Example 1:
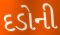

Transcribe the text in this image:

દડોની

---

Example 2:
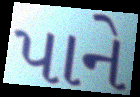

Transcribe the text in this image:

પાને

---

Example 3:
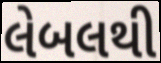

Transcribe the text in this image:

લેબલથી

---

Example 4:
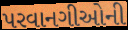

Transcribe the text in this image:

પરવાનગીઓની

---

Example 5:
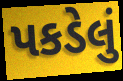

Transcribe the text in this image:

પકડેલું